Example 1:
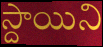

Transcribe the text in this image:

స్దాయిని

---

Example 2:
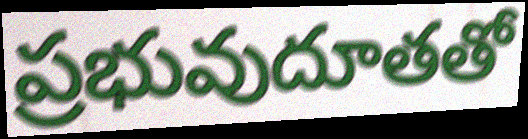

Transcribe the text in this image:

ప్రభువుదూతతో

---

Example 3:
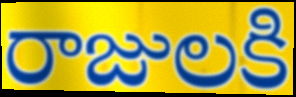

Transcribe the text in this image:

రాజులకి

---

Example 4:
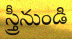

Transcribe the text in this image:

స్త్రీనుండి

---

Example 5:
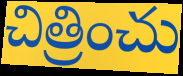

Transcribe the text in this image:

చిత్రించు